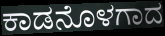
ಕಾಡನೊಳಗಾದ